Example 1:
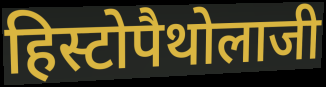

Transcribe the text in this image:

हिस्टोपैथोलाजी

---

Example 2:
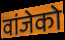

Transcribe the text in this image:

वांजेको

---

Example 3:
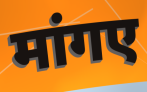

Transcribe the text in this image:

मांगए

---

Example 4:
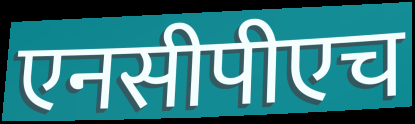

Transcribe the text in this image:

एनसीपीएच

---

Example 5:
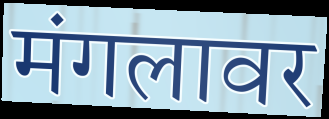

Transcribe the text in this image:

मंगलावर